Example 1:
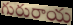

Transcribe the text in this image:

గురురాయ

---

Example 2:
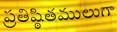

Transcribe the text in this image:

ప్రతిష్ఠితములుగా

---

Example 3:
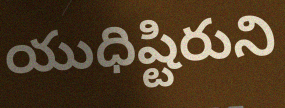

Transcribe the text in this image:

యుధిష్టిరుని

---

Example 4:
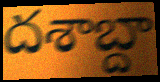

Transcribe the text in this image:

దశాబ్దా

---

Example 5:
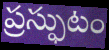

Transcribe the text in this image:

ప్రస్ఫుటం